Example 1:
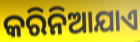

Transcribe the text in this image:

କରିନିଆଯାଏ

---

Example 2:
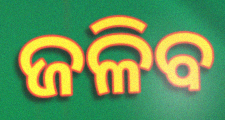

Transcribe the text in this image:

ଜଳିବ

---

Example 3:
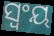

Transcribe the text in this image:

ସ୍ୱଂୟ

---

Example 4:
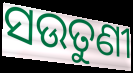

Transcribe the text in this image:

ସଉତୁଣୀ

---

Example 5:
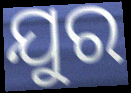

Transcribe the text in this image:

ଯୁର